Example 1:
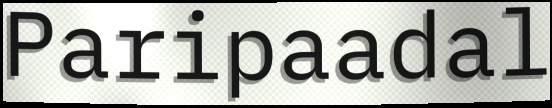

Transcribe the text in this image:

Paripaadal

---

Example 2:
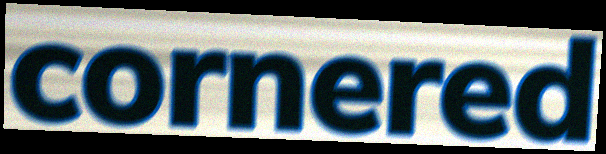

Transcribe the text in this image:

cornered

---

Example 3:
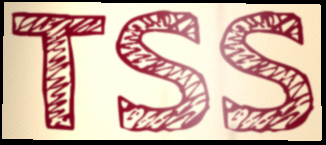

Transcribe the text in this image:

TSS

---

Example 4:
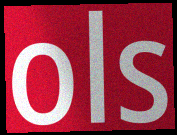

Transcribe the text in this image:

ols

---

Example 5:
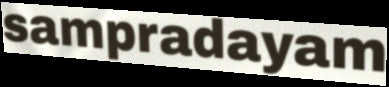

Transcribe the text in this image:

sampradayam